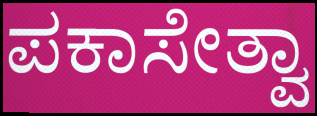
ಪಕಾಸೇತ್ವಾ